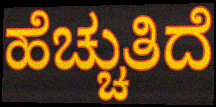
ಹೆಚ್ಚುತಿದೆ